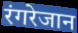
रंगरेजान